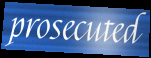
prosecuted